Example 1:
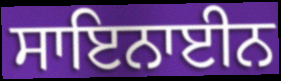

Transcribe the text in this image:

ਸਾਇਨਾਈਨ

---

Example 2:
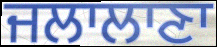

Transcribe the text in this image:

ਜਲਾਲਾਣਾ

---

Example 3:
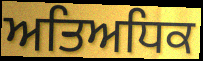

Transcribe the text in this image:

ਅਤਿਅਧਿਕ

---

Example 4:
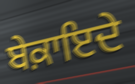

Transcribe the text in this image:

ਬੇਕ਼ਾਇਦੇ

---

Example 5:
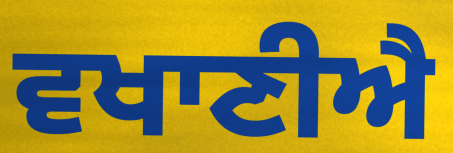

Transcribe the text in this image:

ਵਖਾਣੀਐ